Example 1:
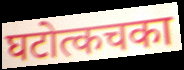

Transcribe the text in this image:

घटोत्कचका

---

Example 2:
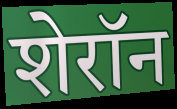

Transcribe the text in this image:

शेरॉन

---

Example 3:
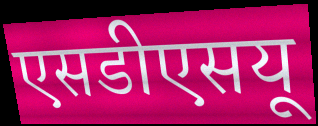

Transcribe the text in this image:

एसडीएसयू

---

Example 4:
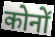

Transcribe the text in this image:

कोनों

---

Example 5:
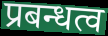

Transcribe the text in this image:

प्रबन्धत्व